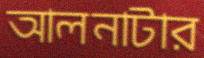
আলনাটার